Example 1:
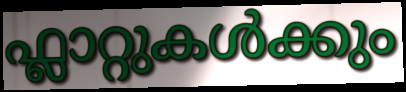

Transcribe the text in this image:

ഫ്ലാറ്റുകൾക്കും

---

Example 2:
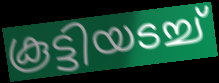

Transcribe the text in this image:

കൂട്ടിയടച്ച്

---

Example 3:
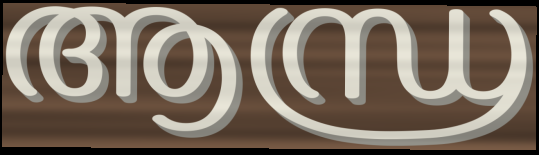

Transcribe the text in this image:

ആന്ധ്ര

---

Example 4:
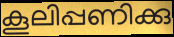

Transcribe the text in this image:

കൂലിപ്പണിക്കു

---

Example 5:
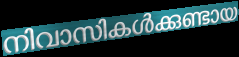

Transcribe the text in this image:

നിവാസികൾക്കുണ്ടായ